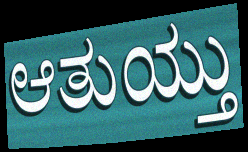
ಆತುಯ್ತು